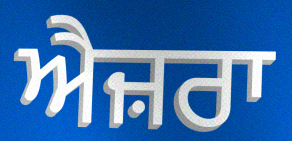
ਐਜ਼ਰਾ